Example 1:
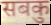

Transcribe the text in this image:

सबकु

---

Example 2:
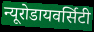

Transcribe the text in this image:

न्यूरोडायवर्सिटी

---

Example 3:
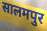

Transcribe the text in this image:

सालमपुर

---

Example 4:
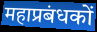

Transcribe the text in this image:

महाप्रबंधकों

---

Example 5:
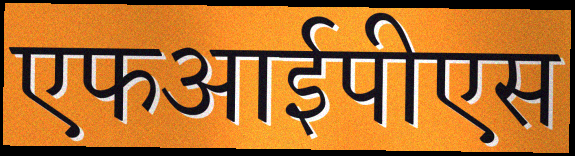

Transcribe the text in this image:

एफआईपीएस